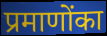
प्रमाणोंका